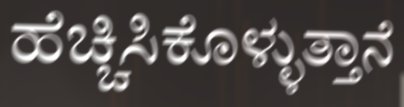
ಹೆಚ್ಚಿಸಿಕೊಳ್ಳುತ್ತಾನೆ